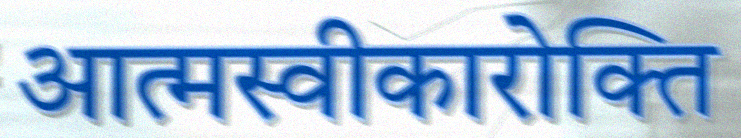
आत्मस्वीकारोक्ति